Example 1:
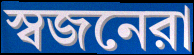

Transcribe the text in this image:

স্বজনেরা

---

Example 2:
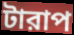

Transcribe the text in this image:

টারাপ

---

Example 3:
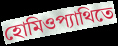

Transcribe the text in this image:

হোমিওপ্যাথিতে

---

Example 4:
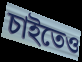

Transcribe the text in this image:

চাইতেও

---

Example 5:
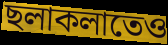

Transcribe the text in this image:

ছলাকলাতেও